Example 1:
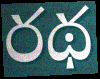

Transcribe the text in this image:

రథ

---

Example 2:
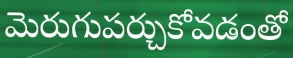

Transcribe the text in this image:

మెరుగుపర్చుకోవడంతో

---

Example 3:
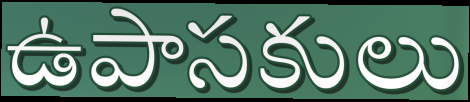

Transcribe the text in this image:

ఉపాసకులు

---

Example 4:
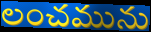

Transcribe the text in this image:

లంచమును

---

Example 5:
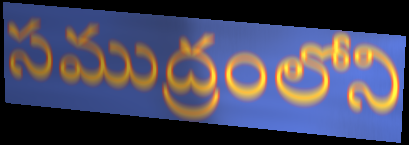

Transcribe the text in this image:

సముద్రంలోని